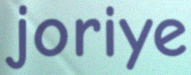
joriye